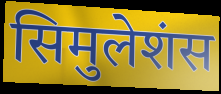
सिमुलेशंस